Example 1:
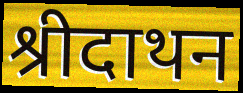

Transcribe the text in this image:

श्रीदाथन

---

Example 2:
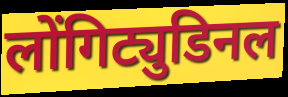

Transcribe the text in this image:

लोंगिट्युडिनल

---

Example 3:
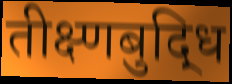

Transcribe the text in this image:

तीक्ष्णबुद्धि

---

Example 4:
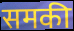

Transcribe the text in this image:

समकी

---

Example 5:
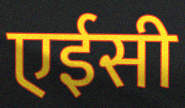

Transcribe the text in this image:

एईसी